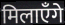
मिलाएँगे